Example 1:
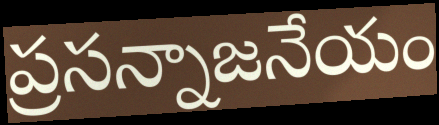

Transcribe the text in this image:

ప్రసన్నాజనేయం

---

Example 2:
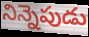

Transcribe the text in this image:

నిన్నెపుడు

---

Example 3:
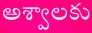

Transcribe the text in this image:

అశ్వాలకు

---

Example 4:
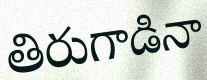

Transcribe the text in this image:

తిరుగాడినా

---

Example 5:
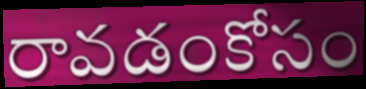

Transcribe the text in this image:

రావడంకోసం